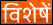
विशेषें